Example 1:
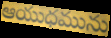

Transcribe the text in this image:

ఆయుధమును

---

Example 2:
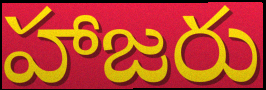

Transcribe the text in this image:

హాజరు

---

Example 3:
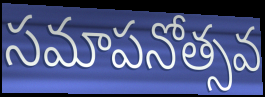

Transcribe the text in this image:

సమాపనోత్సవ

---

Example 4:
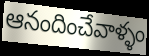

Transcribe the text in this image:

ఆనందించేవాళ్ళం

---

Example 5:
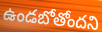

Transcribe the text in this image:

ఉండబోతోందని